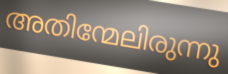
അതിന്മേലിരുന്നു